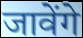
जावेंगे